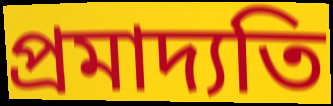
প্রমাদ্যতি